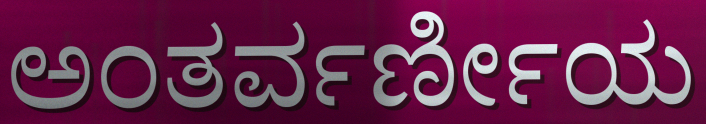
ಅಂತರ್ವರ್ಣೀಯ